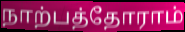
நாற்பத்தோராம்